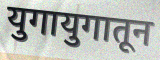
युगायुगातून